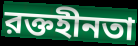
রক্তহীনতা